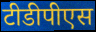
टीडीपीएस